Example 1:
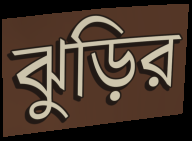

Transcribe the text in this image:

ঝুড়ির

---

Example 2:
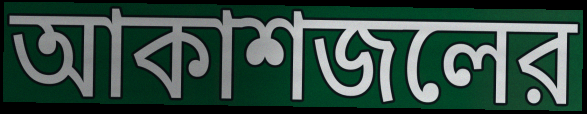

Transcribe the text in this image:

আকাশজলের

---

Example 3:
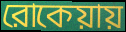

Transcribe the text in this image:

রোকেয়ায়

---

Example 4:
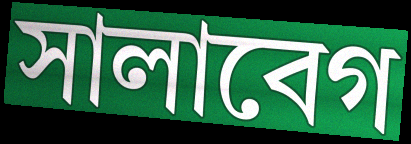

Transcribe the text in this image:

সালাবেগ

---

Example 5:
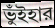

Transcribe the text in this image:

ভুঁইহার